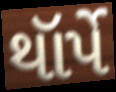
થૉર્પે